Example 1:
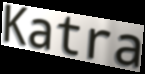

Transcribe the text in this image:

Katra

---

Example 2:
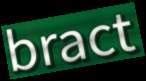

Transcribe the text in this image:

bract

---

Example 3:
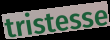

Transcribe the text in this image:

tristesse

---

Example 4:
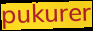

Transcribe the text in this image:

pukurer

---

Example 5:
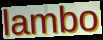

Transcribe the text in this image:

lambo